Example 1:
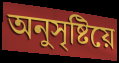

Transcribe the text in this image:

অনুসৃষ্টিয়ে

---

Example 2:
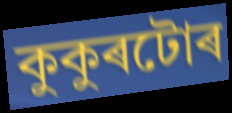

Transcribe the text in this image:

কুকুৰটোৰ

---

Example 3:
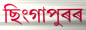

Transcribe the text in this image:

ছিংগাপুৰৰ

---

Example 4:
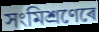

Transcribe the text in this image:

সংমিশ্ৰণেৰে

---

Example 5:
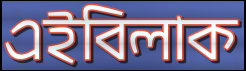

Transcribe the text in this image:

এইবিলাক